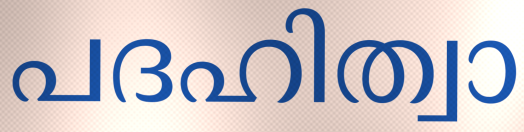
പദഹിത്വാ